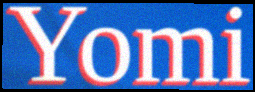
Yomi